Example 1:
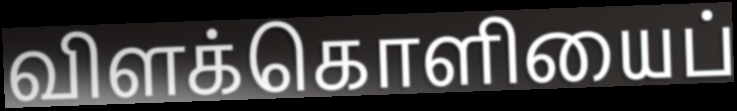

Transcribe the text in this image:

விளக்கொளியைப்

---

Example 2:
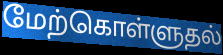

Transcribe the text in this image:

மேற்கொள்ளுதல்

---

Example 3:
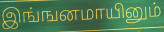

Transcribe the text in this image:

இங்ஙனமாயினும்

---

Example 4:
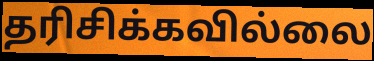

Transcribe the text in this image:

தரிசிக்கவில்லை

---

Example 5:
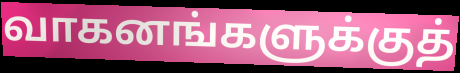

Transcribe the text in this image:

வாகனங்களுக்குத்